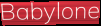
Babylone